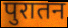
पुरातन